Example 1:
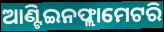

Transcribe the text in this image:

ଆଣ୍ଟିଇନଫ୍ଲାମେଟରି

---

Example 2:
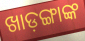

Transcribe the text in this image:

ଖାଡ଼ଙ୍ଗାଙ୍କ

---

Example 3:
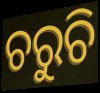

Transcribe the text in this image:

ଚରୁଚି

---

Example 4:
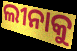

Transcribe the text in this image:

ଲୀନାକୁ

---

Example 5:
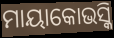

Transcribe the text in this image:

ମାୟାକୋଭସ୍କି